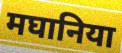
मघानिया